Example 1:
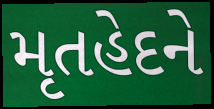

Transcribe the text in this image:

મૃતહેદને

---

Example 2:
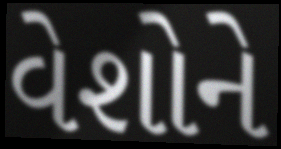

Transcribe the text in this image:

વેશોને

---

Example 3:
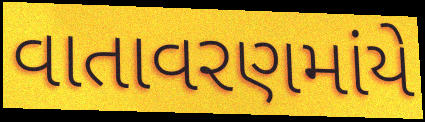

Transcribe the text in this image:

વાતાવરણમાંયે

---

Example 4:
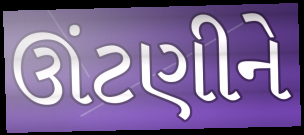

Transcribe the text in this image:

ઊંટણીને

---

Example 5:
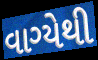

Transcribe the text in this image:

વાગ્યેથી